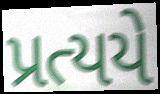
પ્રત્યયે